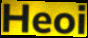
Heoi